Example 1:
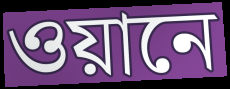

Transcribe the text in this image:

ওয়ানে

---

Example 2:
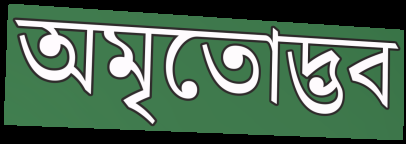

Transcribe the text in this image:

অমৃতোদ্ভব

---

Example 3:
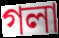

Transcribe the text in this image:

গলা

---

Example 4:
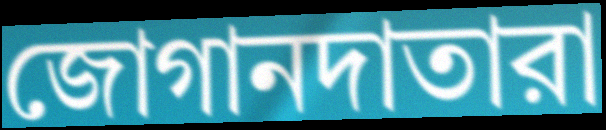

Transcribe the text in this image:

জোগানদাতারা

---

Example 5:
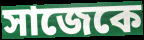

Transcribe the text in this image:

সাজেকে